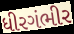
ધીરગંભીર